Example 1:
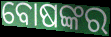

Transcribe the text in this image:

ବୋଷଙ୍କର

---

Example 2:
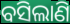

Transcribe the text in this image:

ବସିଲାଣି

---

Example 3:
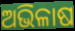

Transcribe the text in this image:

ଅଭିଳାଷ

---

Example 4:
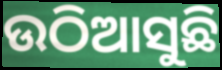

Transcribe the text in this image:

ଉଠିଆସୁଛି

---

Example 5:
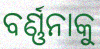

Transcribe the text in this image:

ବର୍ଣ୍ଣନାକୁ